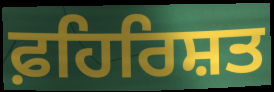
ਫ਼ਹਿਰਿਸ਼ਤ